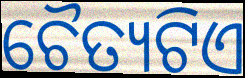
ଚୈତ୍ୟଟିଏ